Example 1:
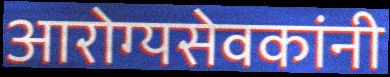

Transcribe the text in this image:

आरोग्यसेवकांनी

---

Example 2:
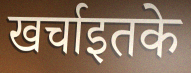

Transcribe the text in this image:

खर्चाइतके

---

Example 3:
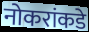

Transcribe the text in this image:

नोकरांकडे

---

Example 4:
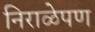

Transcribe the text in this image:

निराळेपण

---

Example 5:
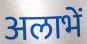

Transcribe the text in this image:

अलाभें